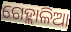
ଗେହ୍ଲାଳିଆ